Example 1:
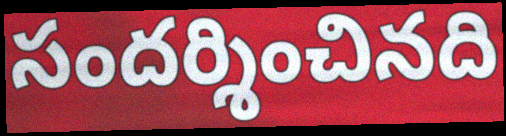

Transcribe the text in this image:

సందర్శించినది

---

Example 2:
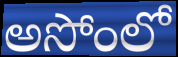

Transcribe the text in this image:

అసోంలో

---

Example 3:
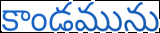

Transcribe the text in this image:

కాండమును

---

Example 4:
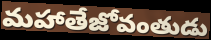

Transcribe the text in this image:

మహాతేజోవంతుడు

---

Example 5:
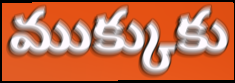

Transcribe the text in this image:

ముక్కుకు